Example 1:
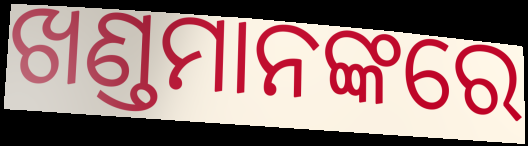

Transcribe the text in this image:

ଖଣ୍ଡମାନଙ୍କରେ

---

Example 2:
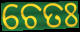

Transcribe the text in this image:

ଚେତଃ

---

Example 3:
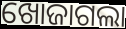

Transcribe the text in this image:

ଖୋଜାଗଲା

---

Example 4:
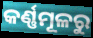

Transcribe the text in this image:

କର୍ଣ୍ଣମୂଳରୁ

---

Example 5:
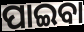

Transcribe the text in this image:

ପାଇବା